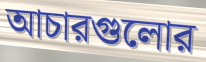
আচারগুলোর